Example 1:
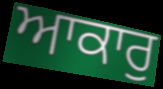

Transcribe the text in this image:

ਆਕਾਰੁ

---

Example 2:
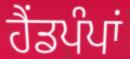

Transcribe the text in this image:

ਹੈਂਡਪੰਪਾਂ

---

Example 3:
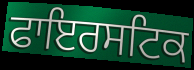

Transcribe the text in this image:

ਫਾਇਰਸਟਿਕ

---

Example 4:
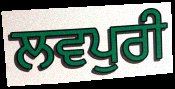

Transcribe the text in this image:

ਲਵਪੁਰੀ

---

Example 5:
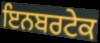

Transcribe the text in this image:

ਇਨਬਰਟੇਕ